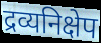
द्रव्यनिक्षेप